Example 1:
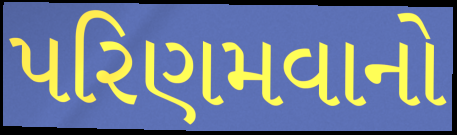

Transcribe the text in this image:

પરિણમવાનો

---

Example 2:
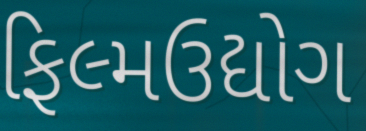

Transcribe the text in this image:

ફિલ્મઉદ્યોગ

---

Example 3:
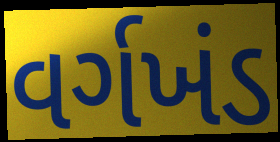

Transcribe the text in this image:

વર્ગખંડ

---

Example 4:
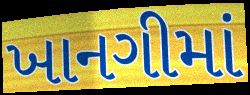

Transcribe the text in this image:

ખાનગીમાં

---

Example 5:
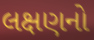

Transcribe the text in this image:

લક્ષણનો